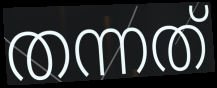
തന്നത്